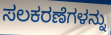
ಸಲಕರಣೆಗಳನ್ನು